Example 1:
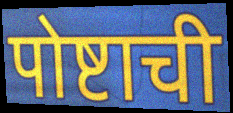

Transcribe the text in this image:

पोष्टाची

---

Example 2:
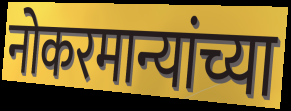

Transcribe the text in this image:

नोकरमान्यांच्या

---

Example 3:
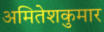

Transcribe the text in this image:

अमितेशकुमार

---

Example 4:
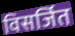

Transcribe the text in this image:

विसर्जित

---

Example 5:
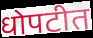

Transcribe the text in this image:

धोपटीत